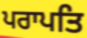
ਪਰਾਪਤਿ